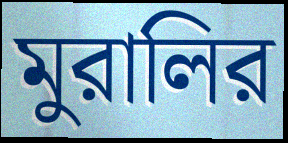
মুরালির